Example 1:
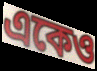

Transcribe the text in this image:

একেও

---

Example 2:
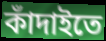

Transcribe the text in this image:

কাঁদাইতে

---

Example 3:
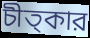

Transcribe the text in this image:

চীত্কার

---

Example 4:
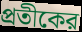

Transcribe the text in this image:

প্রতীকের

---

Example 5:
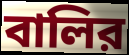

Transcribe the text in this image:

বালির